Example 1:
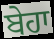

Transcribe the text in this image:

ਬੇਹਾ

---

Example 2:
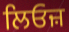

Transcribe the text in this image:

ਲਿਓਜ਼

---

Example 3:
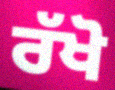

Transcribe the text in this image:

ਰੱਖੋ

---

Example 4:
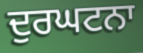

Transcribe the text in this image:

ਦੁਰਘਟਨਾ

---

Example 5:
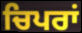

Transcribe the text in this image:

ਚਿਪਰਾਂ